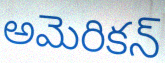
అమెరికన్